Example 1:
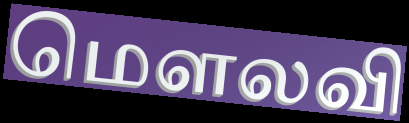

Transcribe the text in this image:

மௌலவி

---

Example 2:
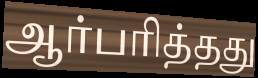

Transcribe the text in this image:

ஆர்பரித்தது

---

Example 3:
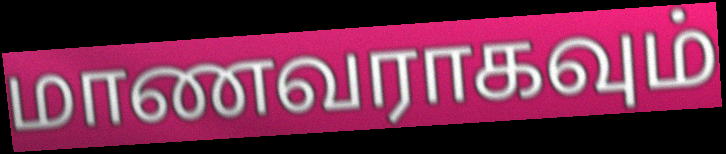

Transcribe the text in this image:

மாணவராகவும்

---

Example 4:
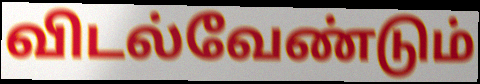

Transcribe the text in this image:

விடல்வேண்டும்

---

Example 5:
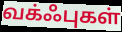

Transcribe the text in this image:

வக்ஃபுகள்